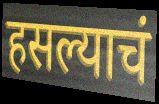
हसल्याचं